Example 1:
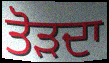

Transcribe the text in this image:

ਤੋੜਦਾ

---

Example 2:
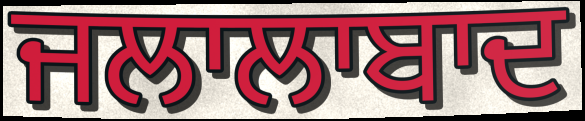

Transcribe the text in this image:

ਜਲਾਲਾਬਾਦ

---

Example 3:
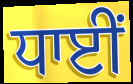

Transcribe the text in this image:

ਧਾਈਂ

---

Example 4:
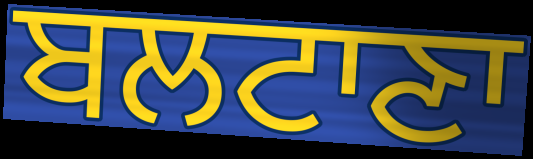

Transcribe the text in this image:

ਬਲਟਾਣਾ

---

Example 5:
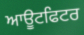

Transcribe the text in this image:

ਆਊਟਫਿਟਰ